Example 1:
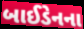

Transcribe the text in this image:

બાઈડેનના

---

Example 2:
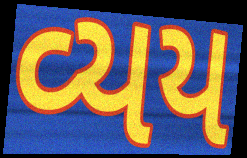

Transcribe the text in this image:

વ્યય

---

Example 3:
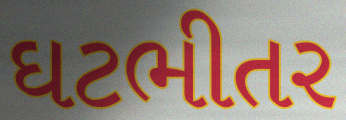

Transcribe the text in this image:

ઘટભીતર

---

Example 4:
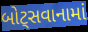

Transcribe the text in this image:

બોટ્સવાનામાં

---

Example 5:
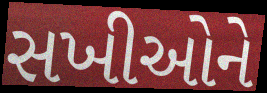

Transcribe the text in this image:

સખીઓને